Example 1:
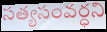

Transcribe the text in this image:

సత్యసంవర్ధని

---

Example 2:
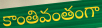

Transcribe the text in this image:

కాంతివంతంగా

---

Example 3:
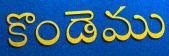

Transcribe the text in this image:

కొండెము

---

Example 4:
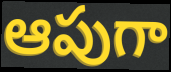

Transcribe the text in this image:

ఆపుగా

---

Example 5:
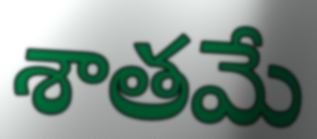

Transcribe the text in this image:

శాతమే